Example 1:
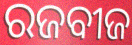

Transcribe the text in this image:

ରଜବୀଜ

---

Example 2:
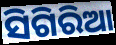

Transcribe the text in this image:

ସିଗିରିଆ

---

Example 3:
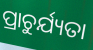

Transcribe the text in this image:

ପ୍ରାଚୁର୍ଯ୍ୟତା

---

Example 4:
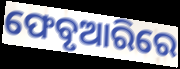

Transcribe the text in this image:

ଫେବୃଆରିରେ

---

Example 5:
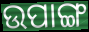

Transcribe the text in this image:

ଉପାଙ୍ଗ